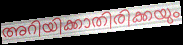
അറിയിക്കാതിരിക്കയും